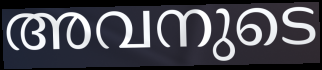
അവനുടെ